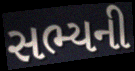
સભ્યની